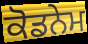
ਕੋਡਨੇਮ